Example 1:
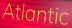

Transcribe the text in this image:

Atlantic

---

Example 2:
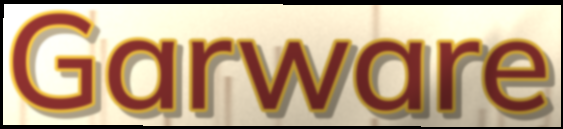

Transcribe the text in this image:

Garware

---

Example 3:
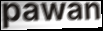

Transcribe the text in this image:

pawan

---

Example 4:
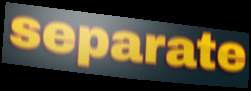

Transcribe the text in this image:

separate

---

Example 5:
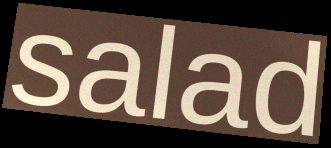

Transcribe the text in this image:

salad